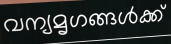
വന്യമൃഗങ്ങൾക്ക്